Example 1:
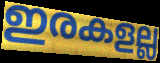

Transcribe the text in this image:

ഇരകളല്ല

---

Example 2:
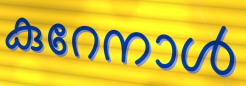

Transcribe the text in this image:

കുറേനാൾ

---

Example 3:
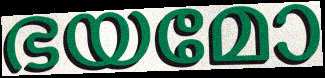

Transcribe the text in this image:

ഭയമോ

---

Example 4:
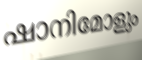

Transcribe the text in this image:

ഷാനിമോളും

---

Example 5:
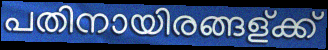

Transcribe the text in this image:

പതിനായിരങ്ങള്ക്ക്